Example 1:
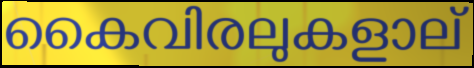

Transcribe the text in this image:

കൈവിരലുകളാല്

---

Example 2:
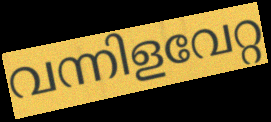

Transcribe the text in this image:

വന്നിളവേറ്റ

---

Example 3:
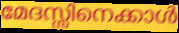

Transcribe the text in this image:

മേദസ്സിനെക്കാൾ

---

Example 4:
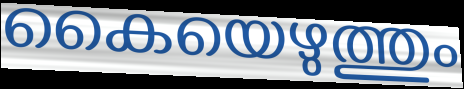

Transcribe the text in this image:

കൈയെഴുത്തും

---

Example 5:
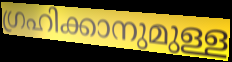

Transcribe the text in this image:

ഗ്രഹിക്കാനുമുള്ള